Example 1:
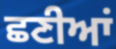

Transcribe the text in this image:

ਛਣੀਆਂ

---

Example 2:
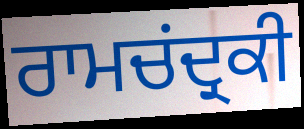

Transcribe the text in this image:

ਰਾਮਚਂਦ੍ਰਕੀ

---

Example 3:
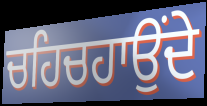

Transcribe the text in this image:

ਚਹਿਚਹਾਉਂਦੇ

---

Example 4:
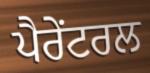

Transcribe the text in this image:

ਪੈਰੇਂਟਰਲ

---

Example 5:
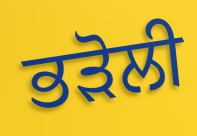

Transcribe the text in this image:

ਭੜੋਲੀ